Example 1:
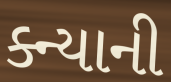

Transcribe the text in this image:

ક્ન્યાની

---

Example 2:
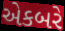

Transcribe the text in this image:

એકબરે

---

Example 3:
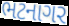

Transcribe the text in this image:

ભટનાગર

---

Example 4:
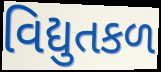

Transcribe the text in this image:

વિદ્યુતકળ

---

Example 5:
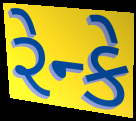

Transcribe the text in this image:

રેન્કે